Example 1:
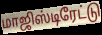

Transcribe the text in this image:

மாஜிஸ்டிரேட்டு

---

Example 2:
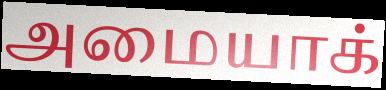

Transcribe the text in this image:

அமையாக்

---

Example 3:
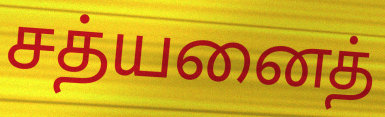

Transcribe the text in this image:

சத்யனைத்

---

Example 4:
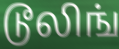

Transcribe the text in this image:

டூலிங்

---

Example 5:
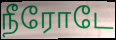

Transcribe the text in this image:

நீரோடே